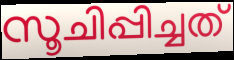
സൂചിപ്പിച്ചത്